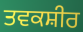
ਤਵਕਸ਼ੀਰ